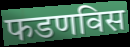
फडणविस